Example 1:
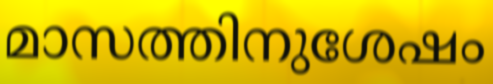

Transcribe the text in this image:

മാസത്തിനുശേഷം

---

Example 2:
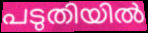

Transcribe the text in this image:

പടുതിയിൽ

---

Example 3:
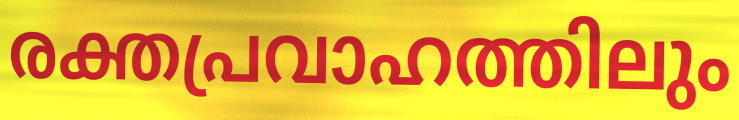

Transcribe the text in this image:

രക്തപ്രവാഹത്തിലും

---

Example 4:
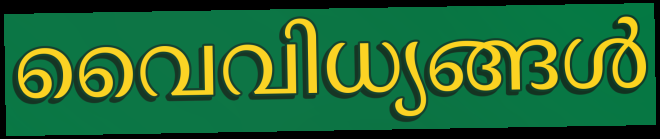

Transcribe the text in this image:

വൈവിധ്യങ്ങൾ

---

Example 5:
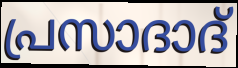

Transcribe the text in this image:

പ്രസാദാദ്